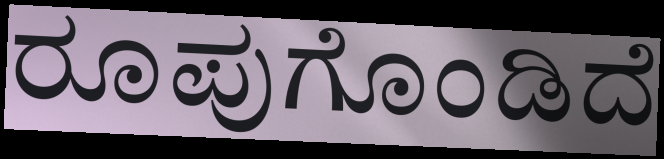
ರೂಪುಗೊಂಡಿದೆ